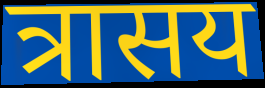
त्रासय